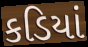
કડિયાં